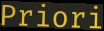
Priori